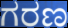
ಗರಣ